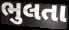
ભુલતા